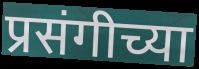
प्रसंगीच्या